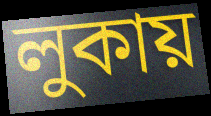
লুকায়